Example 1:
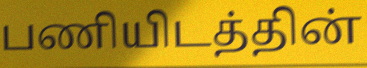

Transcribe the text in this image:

பணியிடத்தின்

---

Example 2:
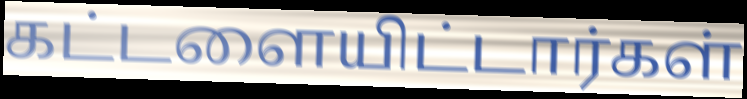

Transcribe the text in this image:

கட்டளையிட்டார்கள்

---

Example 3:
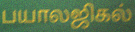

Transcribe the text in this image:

பயாலஜிகல்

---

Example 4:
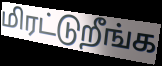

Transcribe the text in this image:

மிரட்டுறீங்க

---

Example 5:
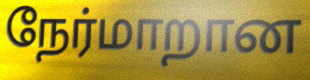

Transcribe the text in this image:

நேர்மாறான